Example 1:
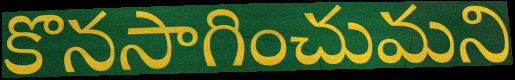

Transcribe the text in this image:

కొనసాగించుమని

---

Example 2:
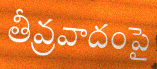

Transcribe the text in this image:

తీవ్రవాదంపై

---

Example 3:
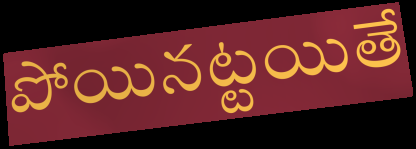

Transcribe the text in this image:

పోయినట్టయితే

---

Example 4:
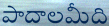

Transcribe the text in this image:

పాదాలమీది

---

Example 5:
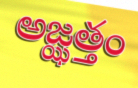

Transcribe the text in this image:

అజ్ఝత్తం